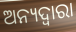
ଅନ୍ୟଦ୍ଵାରା